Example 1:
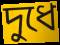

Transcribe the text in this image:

দুধে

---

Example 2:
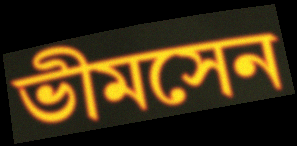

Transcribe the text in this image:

ভীমসেন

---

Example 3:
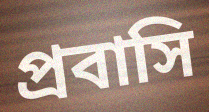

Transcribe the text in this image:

প্রবাসি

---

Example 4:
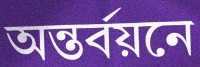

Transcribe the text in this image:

অন্তর্বয়নে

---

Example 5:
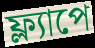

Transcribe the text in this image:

ফ্ল্যাপে